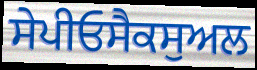
ਸੇਪੀਓਸੈਕਸੁਅਲ